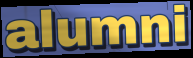
alumni